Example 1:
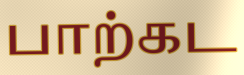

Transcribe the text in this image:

பாற்கட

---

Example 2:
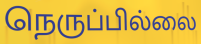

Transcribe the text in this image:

நெருப்பில்லை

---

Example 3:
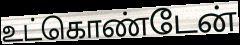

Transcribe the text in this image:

உட்கொண்டேன்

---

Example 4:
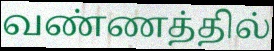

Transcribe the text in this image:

வண்ணத்தில்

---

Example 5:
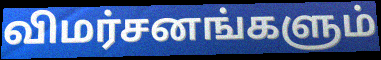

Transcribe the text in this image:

விமர்சனங்களும்